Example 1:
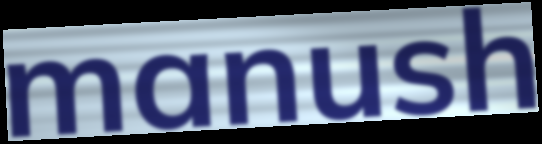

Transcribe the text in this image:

manush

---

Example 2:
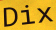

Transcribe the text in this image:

Dix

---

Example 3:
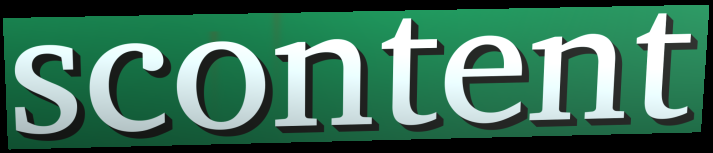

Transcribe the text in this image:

scontent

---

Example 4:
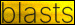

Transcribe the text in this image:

blasts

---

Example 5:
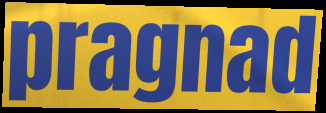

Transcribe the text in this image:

pragnad